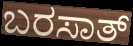
ಬರಸಾತ್